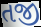
તજી